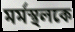
মর্মস্থলকে